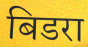
बिडरा